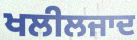
ਖਲੀਲਜਾਦ